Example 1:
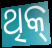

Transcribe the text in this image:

ଥିକ୍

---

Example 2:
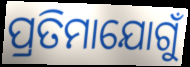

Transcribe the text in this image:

ପ୍ରତିମାଯୋଗୁଁ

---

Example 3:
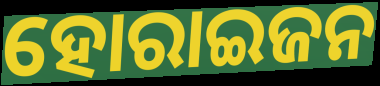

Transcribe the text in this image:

ହୋରାଇଜନ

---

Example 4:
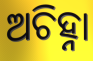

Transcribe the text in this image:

ଅଚିହ୍ନା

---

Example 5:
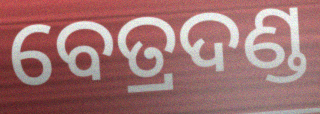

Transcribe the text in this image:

ବେତ୍ରଦଣ୍ଡ